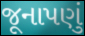
જૂનાપણું